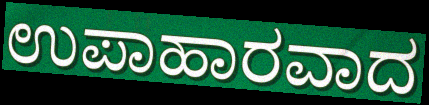
ಉಪಾಹಾರವಾದ